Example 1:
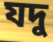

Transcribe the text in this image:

যদু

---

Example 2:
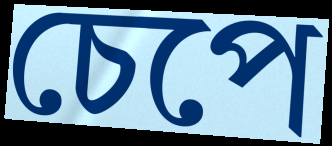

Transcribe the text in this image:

চেপে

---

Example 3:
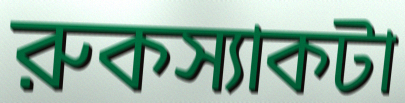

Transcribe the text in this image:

রুকস্যাকটা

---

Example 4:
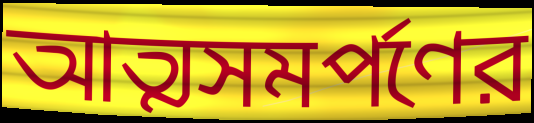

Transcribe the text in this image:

আত্মসমর্পণের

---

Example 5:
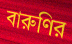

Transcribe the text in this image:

বারুণির